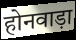
होनवाड़ा